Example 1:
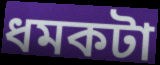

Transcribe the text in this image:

ধমকটা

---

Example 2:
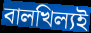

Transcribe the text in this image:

বালখিল্যই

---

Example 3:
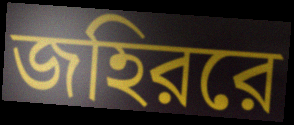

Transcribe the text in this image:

জহিররে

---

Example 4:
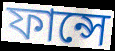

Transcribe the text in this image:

ফান্সে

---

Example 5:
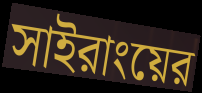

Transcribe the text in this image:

সাইরাংয়ের